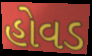
હોવડ